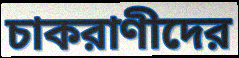
চাকরাণীদের